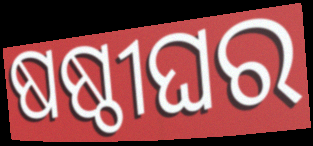
ଷଷ୍ଠୀଘର